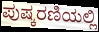
ಪುಷ್ಕರಣಿಯಲ್ಲಿ